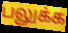
பலுக்க